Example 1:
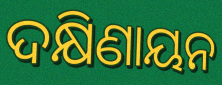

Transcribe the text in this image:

ଦକ୍ଷିଣାୟନ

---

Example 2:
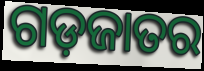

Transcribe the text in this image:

ଗଡ଼ଜାତର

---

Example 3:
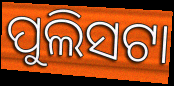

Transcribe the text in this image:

ପୁଲିସଟା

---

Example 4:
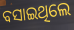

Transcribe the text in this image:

ବସାଇଥିଲେ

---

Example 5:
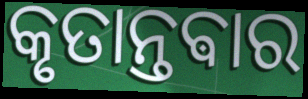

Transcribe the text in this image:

କୃତାନ୍ତଵାର